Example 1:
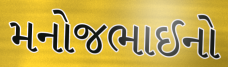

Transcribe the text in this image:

મનોજભાઈનો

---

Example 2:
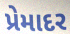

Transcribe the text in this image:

પ્રેમાદર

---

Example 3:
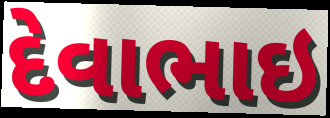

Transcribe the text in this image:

દેવાભાઇ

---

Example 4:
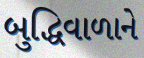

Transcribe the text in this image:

બુદ્ધિવાળાને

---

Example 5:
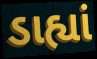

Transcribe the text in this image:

ડાહ્યાં